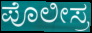
ಪೊಲೀಸ್ರ